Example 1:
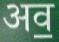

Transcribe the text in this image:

अव॒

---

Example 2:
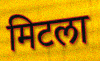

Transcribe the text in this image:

मिटला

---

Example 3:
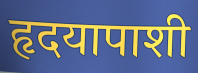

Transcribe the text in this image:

हृदयापाशी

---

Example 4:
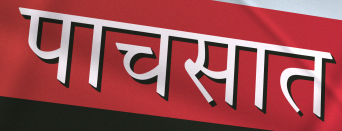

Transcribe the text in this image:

पाचसात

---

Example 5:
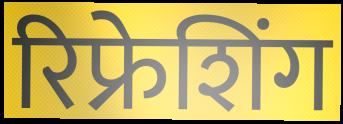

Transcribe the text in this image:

रिफ्रेशिंग